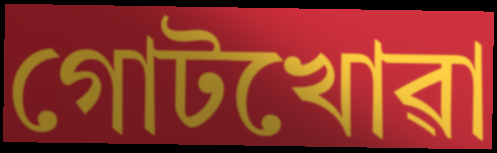
গোটখোৱা